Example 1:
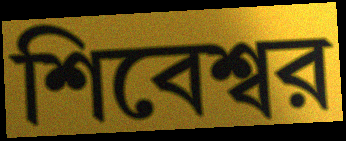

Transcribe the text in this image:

শিবেশ্বর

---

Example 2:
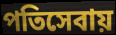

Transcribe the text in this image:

পতিসেবায়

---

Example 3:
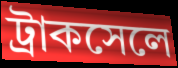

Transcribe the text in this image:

ট্রাকসেলে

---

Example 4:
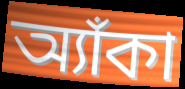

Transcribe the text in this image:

অ্যাঁকা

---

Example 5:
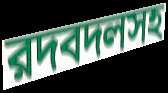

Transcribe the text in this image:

রদবদলসহ